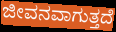
ಜೀವನವಾಗುತ್ತದೆ